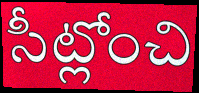
సీట్లోంచి